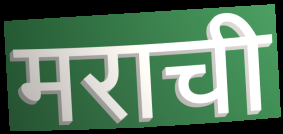
मराची